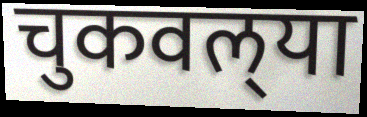
चुकवल्या